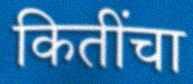
कितींचा